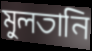
মুলতানি